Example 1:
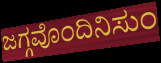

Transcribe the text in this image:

ಜಗ್ಗವೊಂದಿನಿಸುಂ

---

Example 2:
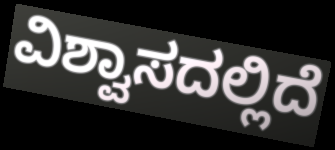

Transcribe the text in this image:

ವಿಶ್ವಾಸದಲ್ಲಿದೆ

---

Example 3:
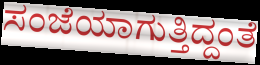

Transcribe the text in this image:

ಸಂಜೆಯಾಗುತ್ತಿದ್ದಂತೆ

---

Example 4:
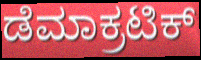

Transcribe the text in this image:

ಡೆಮಾಕ್ರಟಿಕ್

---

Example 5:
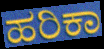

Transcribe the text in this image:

ಹರಿಕಾ